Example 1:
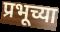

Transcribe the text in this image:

प्रभूच्या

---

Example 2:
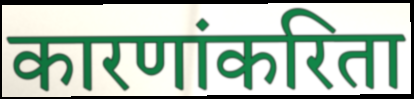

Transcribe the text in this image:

कारणांकरिता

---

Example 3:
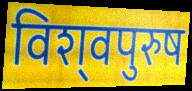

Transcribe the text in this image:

विश्वपुरुष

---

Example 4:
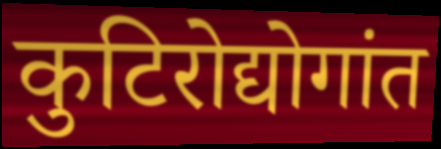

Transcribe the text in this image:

कुटिरोद्योगांत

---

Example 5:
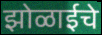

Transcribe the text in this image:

झोळाईचे